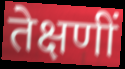
तेक्षणीं